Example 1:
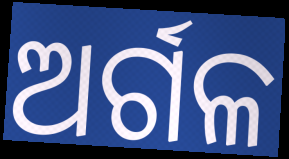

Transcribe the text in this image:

ଅର୍ଗଳ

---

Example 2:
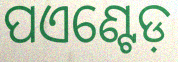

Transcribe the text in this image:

ପଏଣ୍ଟେଡ଼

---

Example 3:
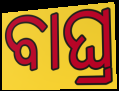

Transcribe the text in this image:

ବାଘ୍ର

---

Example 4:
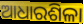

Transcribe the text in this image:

ଆଧାରଶିଳା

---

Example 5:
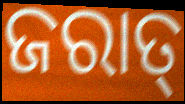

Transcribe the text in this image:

ଜରାତ୍